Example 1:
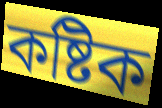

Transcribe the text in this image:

কষ্টিক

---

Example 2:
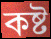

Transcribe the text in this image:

কষ্ট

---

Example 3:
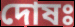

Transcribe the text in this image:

দোষঃ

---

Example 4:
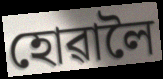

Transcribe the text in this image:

হোৱালৈ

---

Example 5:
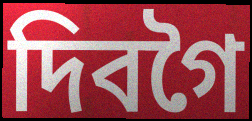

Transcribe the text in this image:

দিবগৈ